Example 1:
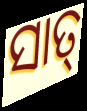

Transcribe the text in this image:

ସାତ୍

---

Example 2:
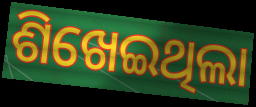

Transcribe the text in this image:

ଶିଖେଇଥିଲା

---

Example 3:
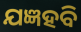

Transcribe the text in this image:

ଯଜ୍ଞହବି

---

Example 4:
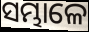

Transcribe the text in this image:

ସମ୍ଭାଳେ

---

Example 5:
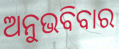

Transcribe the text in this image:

ଅନୁଭବିବାର